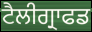
ਟੈਲੀਗ੍ਰਾਫਡ